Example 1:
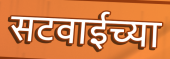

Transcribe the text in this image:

सटवाईच्या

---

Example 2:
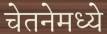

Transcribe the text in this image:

चेतनेमध्ये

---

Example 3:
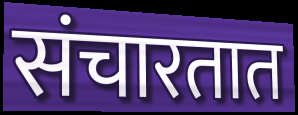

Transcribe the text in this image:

संचारतात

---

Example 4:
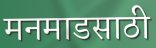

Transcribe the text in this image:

मनमाडसाठी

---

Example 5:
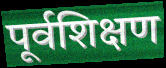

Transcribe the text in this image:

पूर्वशिक्षण